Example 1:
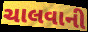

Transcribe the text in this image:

ચાલવાની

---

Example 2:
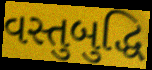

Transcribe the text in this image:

વસ્તુબુદ્ધિ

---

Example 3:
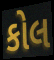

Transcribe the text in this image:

કોલ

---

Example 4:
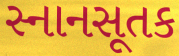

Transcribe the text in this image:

સ્નાનસૂતક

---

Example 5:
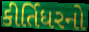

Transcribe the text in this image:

કીર્તિધરનો